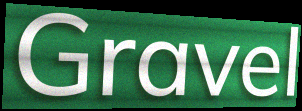
Gravel